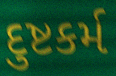
દુષ્ટકર્મ